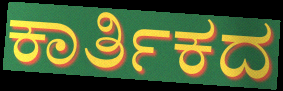
ಕಾರ್ತಿಕದ